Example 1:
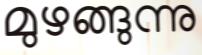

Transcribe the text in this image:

മുഴങ്ങുന്നു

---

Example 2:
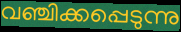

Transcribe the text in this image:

വഞ്ചിക്കപ്പെടുന്നു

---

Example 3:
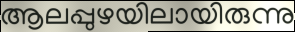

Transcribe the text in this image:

ആലപ്പുഴയിലായിരുന്നു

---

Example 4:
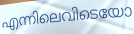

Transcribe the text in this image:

എന്നിലെവിടെയോ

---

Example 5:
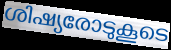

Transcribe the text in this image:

ശിഷ്യരോടുകൂടെ